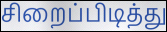
சிறைப்பிடித்து